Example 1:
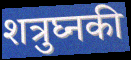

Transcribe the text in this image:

शत्रुघ्नकी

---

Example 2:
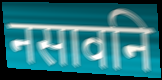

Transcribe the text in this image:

नसावनि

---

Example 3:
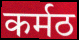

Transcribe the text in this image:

कर्मठ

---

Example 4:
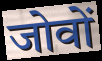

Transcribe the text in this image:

जोवों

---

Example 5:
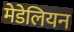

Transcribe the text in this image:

मेडेलियन